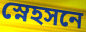
স্নেহসনে